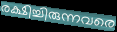
രക്ഷിച്ചിരുന്നവരെ